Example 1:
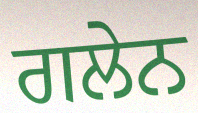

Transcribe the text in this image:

ਗਲੇਨ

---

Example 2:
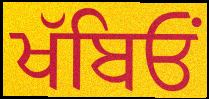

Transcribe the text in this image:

ਖੱਬਿਓਂ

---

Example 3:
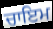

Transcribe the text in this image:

ਚਾਇਮ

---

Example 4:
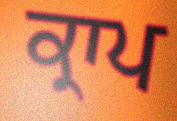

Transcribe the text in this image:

ਕ੍ਰਾਪ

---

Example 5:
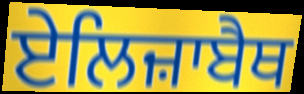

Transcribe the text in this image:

ਏਲਿਜ਼ਾਬੈਥ